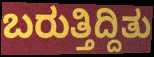
ಬರುತ್ತಿದ್ದಿತು